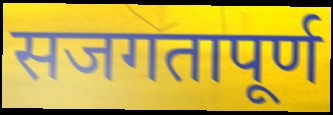
सजगतापूर्ण